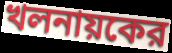
খলনায়কের